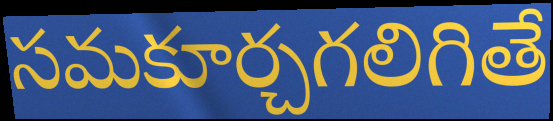
సమకూర్చగలిగితే